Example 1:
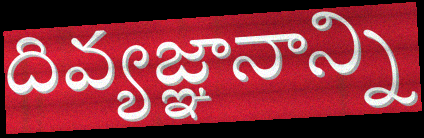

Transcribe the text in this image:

దివ్యజ్ఞానాన్ని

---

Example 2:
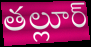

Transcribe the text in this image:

తల్లూర్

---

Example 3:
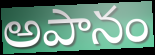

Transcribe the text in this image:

అపానం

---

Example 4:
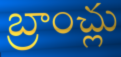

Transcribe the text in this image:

బ్రాంచ్లు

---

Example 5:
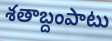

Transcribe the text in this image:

శతాబ్దంపాటు